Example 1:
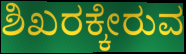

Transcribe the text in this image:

ಶಿಖರಕ್ಕೇರುವ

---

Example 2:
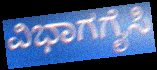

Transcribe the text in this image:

ವಿಭಾಗಗೈಸಿ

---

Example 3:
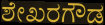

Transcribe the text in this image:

ಶೇಖರಗೌಡ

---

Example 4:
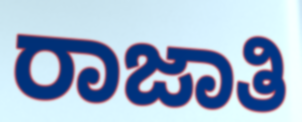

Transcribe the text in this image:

ರಾಜಾತಿ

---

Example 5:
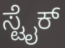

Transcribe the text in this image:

ಸ್ಟೈಕ್